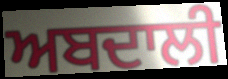
ਅਬਦਾਲੀ